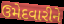
ઉમેદવારીને